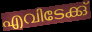
എവിടേക്കു്